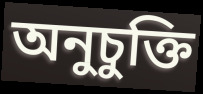
অনুচুক্তি